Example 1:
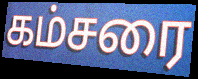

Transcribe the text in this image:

கம்சரை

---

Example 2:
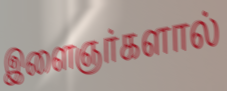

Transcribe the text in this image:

இளைஞர்களால்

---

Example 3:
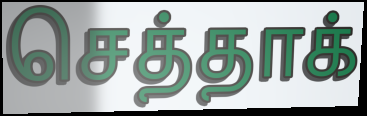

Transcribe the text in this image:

செத்தாக்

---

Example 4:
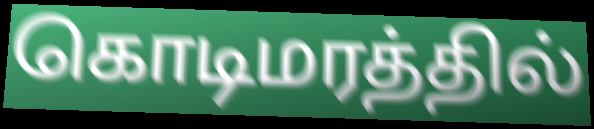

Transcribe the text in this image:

கொடிமரத்தில்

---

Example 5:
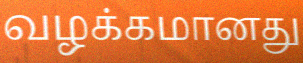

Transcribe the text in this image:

வழக்கமானது